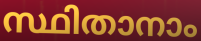
സ്ഥിതാനാം